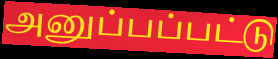
அனுப்பப்பட்டு